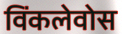
विंकलेवोस